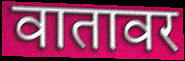
वातावर